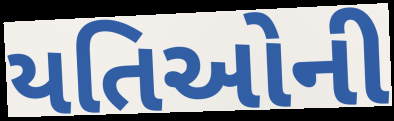
યતિઓની